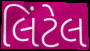
લિંટેલ